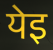
येइ